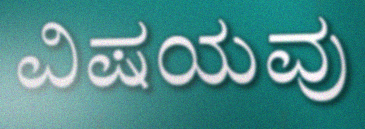
ವಿಷಯವು